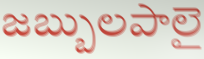
జబ్బులపాలై